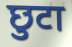
छुटा